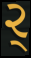
ર્